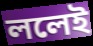
ললেই